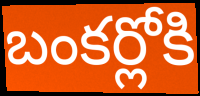
బంకర్లోకి